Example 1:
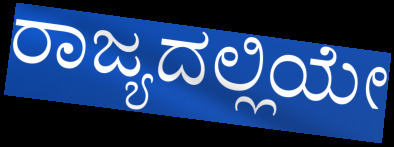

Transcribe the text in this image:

ರಾಜ್ಯದಲ್ಲಿಯೇ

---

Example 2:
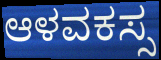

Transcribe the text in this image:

ಆಳವಕಸ್ಸ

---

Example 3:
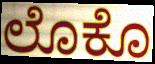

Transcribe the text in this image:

ಲೊಕೊ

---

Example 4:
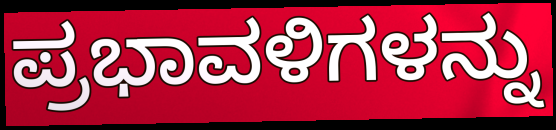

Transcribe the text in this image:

ಪ್ರಭಾವಳಿಗಳನ್ನು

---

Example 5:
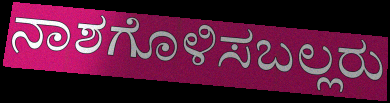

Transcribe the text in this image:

ನಾಶಗೊಳಿಸಬಲ್ಲರು